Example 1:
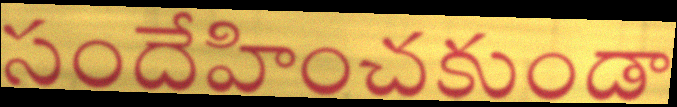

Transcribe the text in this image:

సందేహించకుండా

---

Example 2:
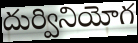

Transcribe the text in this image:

దుర్వినియోగ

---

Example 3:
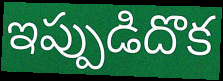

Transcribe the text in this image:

ఇప్పుడిదొక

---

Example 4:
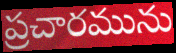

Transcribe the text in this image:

ప్రచారమును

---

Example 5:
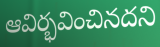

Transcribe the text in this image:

ఆవిర్భవించినదని